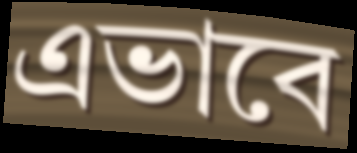
এভাবে